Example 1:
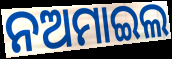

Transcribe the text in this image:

ନଅମାଇଲ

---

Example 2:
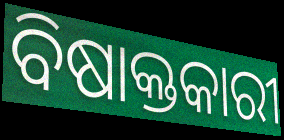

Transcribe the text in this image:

ବିଷାକ୍ତକାରୀ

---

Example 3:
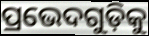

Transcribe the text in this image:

ପ୍ରଭେଦଗୁଡ଼ିକୁ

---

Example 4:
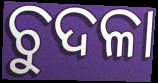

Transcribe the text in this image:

ଚୁଦଳା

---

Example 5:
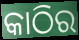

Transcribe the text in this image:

କାଠିର